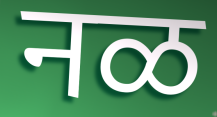
नळ